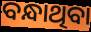
ବନ୍ଧାଥିବା